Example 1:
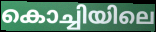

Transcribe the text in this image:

കൊച്ചിയിലെ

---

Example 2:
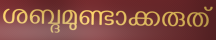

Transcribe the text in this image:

ശബ്ദമുണ്ടാക്കരുത്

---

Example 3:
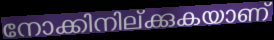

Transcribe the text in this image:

നോക്കിനില്ക്കുകയാണ്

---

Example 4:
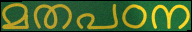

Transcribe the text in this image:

മതപഠന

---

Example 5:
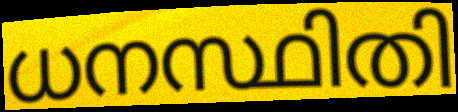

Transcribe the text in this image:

ധനസ്ഥിതി